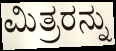
ಮಿತ್ರರನ್ನು